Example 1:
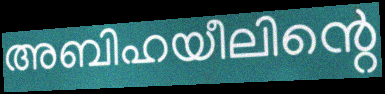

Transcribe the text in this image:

അബിഹയീലിന്റെ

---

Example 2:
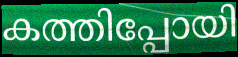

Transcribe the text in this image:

കത്തിപ്പോയി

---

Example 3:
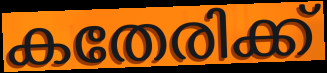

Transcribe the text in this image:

കതേരിക്ക്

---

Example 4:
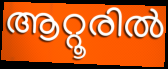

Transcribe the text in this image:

ആറ്റൂരിൽ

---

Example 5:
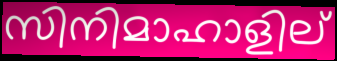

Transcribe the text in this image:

സിനിമാഹാളില്